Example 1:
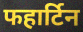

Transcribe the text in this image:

फहार्टिन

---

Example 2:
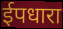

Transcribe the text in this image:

ईपधारा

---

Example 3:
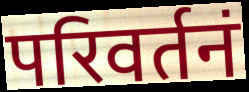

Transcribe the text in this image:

परिवर्तनं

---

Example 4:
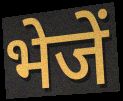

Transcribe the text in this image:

भेजें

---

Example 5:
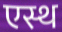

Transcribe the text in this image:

एस्थ